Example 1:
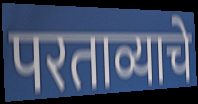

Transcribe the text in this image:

परताव्याचे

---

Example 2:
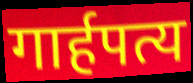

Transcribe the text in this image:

गार्हपत्य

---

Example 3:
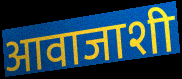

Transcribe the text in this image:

आवाजाशी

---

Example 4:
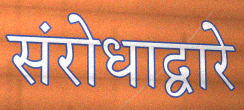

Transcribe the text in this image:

संरोधाद्वारे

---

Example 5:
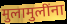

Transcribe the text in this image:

मुलामुलींना